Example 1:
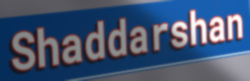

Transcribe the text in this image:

Shaddarshan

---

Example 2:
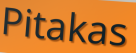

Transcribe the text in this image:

Pitakas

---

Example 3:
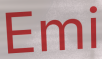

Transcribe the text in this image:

Emi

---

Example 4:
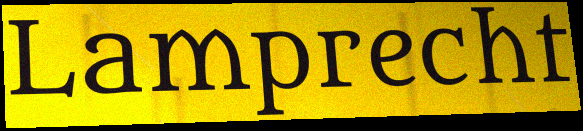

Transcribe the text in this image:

Lamprecht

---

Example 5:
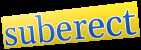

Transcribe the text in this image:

suberect